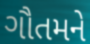
ગૌતમને